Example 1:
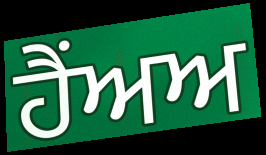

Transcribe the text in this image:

ਹੈਂਅਅ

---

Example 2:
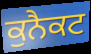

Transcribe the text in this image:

ਕੁਨੈਕਟ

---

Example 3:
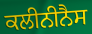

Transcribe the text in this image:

ਕਲੀਨੀਨੈਸ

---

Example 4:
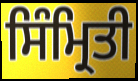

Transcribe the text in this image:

ਸਿੰਮ੍ਰਿਤੀ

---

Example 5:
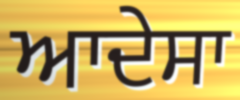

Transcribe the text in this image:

ਆਦੇਸਾ